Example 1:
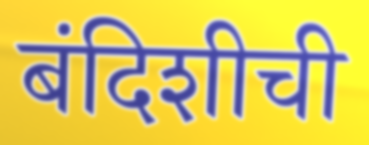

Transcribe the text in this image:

बंदिशीची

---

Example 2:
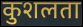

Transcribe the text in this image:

कुशलता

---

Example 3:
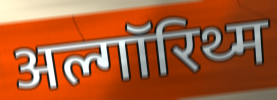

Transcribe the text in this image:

अल्गॉरिथ्म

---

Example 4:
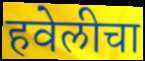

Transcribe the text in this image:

हवेलीचा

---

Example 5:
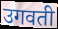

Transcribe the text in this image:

उगवती